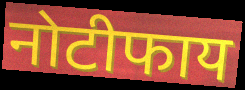
नोटीफाय